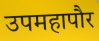
उपमहापौर